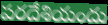
పరదేశియందు